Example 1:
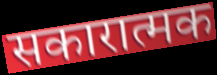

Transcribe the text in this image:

सकारात्मक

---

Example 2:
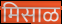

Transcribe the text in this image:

मिसाळ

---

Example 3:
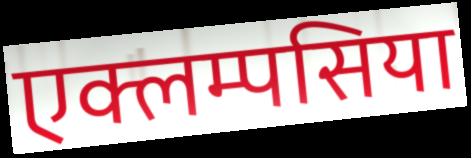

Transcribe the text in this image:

एक्लम्पसिया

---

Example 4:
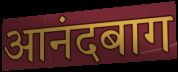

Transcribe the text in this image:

आनंदबाग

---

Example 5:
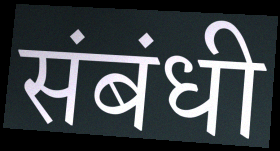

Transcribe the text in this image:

संबंधी